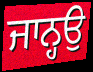
ਜਾਨ੍ਹਉ